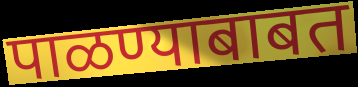
पाळण्याबाबत